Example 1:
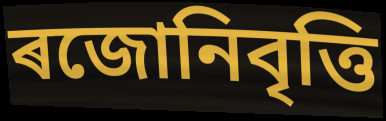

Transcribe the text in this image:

ৰজোনিবৃত্তি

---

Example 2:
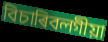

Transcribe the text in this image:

বিচাৰিবলগীয়া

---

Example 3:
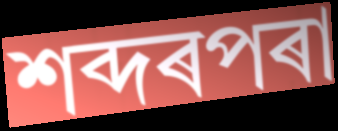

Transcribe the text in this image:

শব্দৰপৰা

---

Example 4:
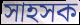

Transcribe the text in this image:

সাহসক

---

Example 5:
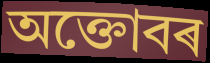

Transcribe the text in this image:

অক্তোবৰ